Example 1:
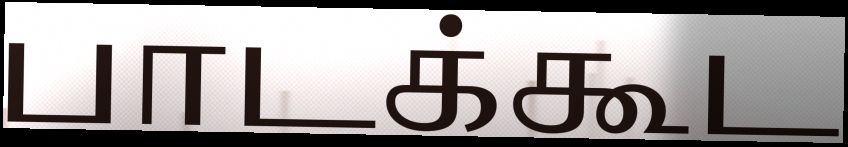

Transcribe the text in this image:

பாடக்கூட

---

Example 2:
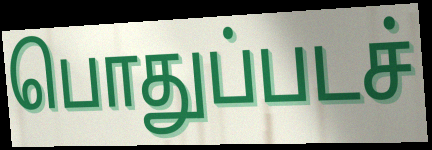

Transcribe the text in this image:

பொதுப்படச்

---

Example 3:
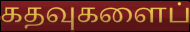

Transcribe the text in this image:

கதவுகளைப்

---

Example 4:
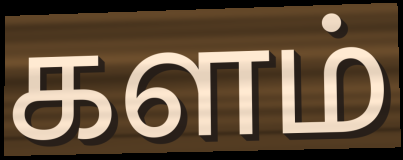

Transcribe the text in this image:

களம்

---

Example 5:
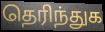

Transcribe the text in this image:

தெரிந்துக